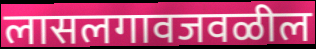
लासलगावजवळील